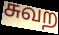
சுவற